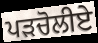
ਪੜਚੋਲੀਏ